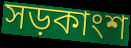
সড়কাংশ